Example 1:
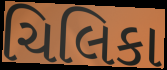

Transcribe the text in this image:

ચિલિકા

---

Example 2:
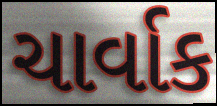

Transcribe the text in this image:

ચાર્વાક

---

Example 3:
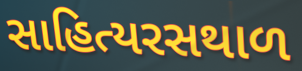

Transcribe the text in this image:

સાહિત્યરસથાળ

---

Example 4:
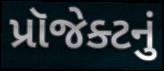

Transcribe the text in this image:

પ્રૉજેક્ટનું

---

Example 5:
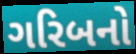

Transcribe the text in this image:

ગરિબનો